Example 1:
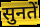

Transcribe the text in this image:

सुनतें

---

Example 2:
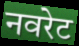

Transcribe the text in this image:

नवरेट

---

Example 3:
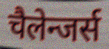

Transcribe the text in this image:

चैलेन्जर्स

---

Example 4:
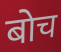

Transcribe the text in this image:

बोच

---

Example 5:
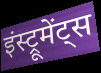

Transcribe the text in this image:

इंस्‍ट्रूमेंट्स